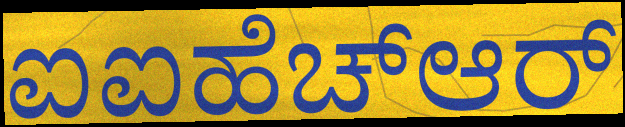
ಐಐಹೆಚ್ಆರ್